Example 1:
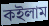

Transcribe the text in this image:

কইলাম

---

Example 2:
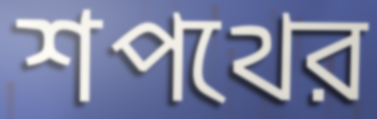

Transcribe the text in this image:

শপথের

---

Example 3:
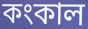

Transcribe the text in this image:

কংকাল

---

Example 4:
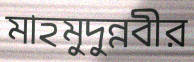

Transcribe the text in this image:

মাহমুদুন্নবীর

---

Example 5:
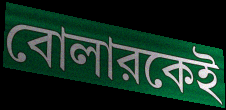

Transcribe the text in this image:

বোলারকেই